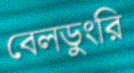
বেলডুংরি